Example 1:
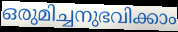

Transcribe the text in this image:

ഒരുമിച്ചനുഭവിക്കാം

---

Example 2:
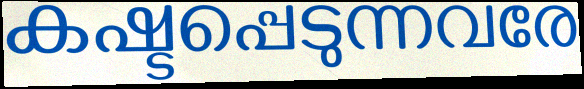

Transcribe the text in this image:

കഷ്ടപ്പെടുന്നവരേ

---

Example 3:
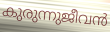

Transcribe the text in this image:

കുരുന്നുജീവൻ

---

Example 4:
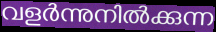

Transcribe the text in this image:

വളർന്നുനിൽക്കുന്ന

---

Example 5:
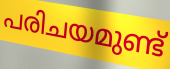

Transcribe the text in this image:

പരിചയമുണ്ട്